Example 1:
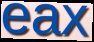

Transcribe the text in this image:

eax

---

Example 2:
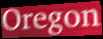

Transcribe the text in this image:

Oregon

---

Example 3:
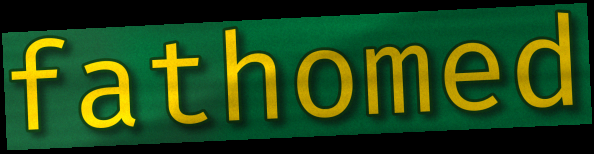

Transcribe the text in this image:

fathomed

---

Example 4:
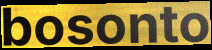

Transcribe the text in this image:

bosonto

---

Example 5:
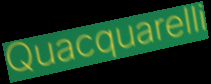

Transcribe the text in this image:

Quacquarelli